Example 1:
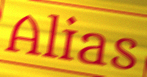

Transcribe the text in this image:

Alias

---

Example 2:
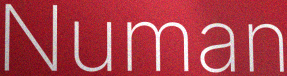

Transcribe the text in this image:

Numan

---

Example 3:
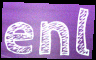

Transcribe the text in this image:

enl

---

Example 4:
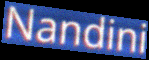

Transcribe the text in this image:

Nandini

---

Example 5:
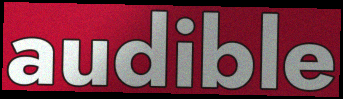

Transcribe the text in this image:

audible